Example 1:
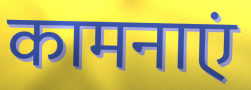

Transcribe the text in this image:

कामनाएं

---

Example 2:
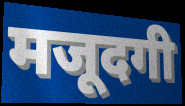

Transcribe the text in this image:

मजूदगी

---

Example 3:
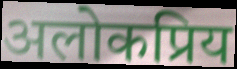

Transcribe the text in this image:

अलोकप्रिय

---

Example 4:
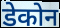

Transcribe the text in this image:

डेकोन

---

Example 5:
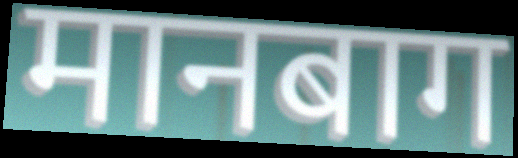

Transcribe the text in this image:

मानबाग